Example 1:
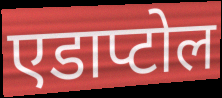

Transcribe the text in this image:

एडाप्टोल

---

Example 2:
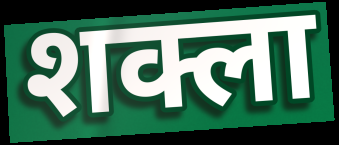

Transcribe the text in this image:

शक्ला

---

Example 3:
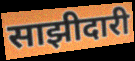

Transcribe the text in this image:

साझीदारी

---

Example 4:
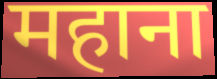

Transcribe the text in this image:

महाना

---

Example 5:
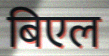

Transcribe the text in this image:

बिएल